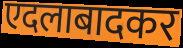
एदलाबादकर